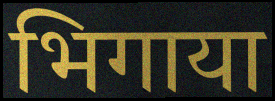
भिगाया